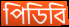
পিডিবি